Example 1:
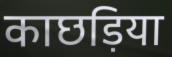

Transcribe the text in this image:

काछड़िया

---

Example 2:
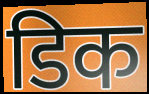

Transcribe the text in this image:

डिक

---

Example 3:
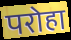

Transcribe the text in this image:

परोहा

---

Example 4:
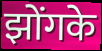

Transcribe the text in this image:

झोंगके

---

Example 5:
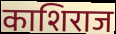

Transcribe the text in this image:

काशिराज